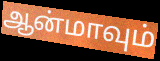
ஆன்மாவும்